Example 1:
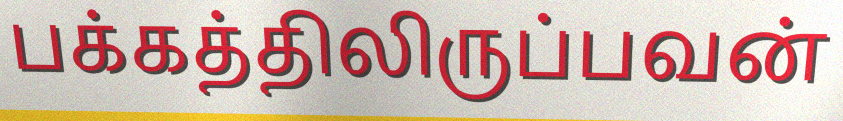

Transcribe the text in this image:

பக்கத்திலிருப்பவன்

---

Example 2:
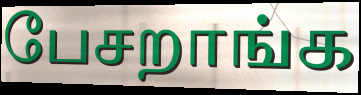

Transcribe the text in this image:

பேசறாங்க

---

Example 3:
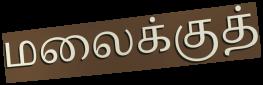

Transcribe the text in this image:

மலைக்குத்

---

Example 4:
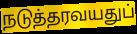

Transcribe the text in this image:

நடுத்தரவயதுப்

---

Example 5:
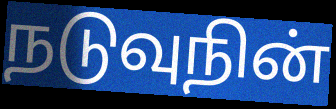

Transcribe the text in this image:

நடுவுநின்